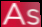
As